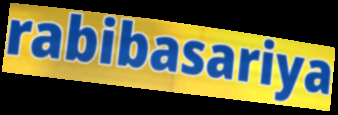
rabibasariya